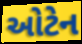
ઓટેન